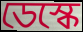
ডেস্কে